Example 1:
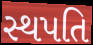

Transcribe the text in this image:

સ્થપતિ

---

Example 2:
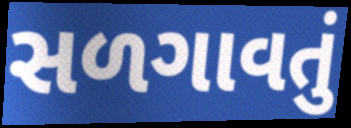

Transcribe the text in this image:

સળગાવતું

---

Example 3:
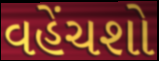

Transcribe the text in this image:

વહેંચશો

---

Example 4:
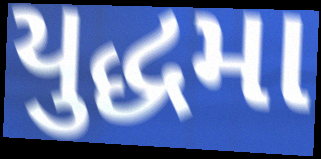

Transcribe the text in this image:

યુદ્ધમા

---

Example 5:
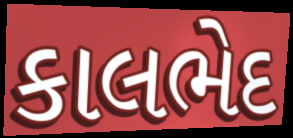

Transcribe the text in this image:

કાલભેદ